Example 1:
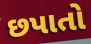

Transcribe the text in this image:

છપાતો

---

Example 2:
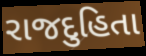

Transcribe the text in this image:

રાજદુહિતા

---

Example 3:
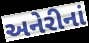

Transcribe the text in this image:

અનેરીનાં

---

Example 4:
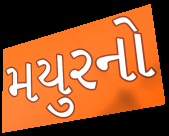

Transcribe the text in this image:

મયુરનો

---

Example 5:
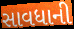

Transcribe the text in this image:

સાવધાની